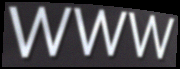
WWW